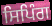
ਸਿਪਿੰਗ